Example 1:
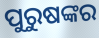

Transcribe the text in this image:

ପୁରୁଷଙ୍କର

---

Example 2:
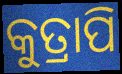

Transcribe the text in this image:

କୁତ୍ରାପି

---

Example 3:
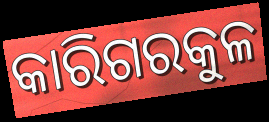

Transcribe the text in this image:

କାରିଗରକୁଳ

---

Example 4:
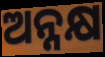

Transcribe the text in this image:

ଅନ୍ନକ୍ଷ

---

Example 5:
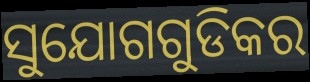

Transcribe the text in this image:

ସୁଯୋଗଗୁଡିକର